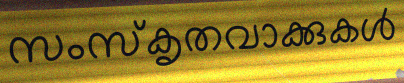
സംസ്കൃതവാക്കുകൾ